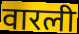
वारली